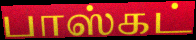
பாஸ்கட்